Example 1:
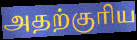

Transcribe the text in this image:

அதற்குரிய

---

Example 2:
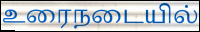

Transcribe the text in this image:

உரைநடையில்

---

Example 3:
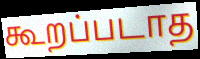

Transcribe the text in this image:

கூறப்படாத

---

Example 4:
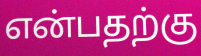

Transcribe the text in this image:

என்பதற்கு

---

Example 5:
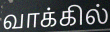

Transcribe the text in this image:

வாக்கில்